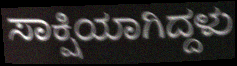
ಸಾಕ್ಷಿಯಾಗಿದ್ದಳು